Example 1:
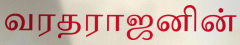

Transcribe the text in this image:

வரதராஜனின்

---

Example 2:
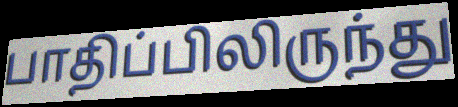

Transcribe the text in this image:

பாதிப்பிலிருந்து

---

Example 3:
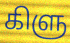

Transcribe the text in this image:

கிளு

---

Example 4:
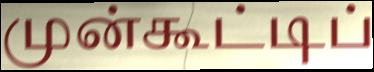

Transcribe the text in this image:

முன்கூட்டிப்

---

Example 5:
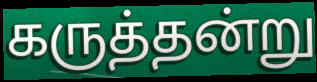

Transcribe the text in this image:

கருத்தன்று